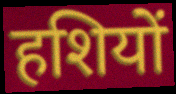
हशियों